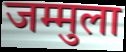
जम्मुला